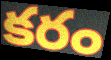
కరం